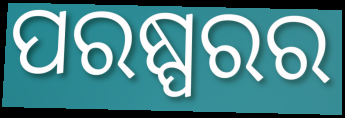
ପରଷ୍ପରର